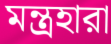
মন্ত্রহারা